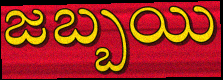
జబ్బయి